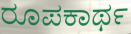
ರೂಪಕಾರ್ಥ